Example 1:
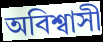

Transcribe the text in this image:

অবিশ্বাসী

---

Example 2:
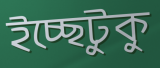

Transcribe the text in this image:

ইচ্ছেটুকু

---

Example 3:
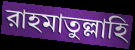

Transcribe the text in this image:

রাহমাতুল্লাহি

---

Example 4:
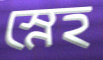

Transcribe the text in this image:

স্নেহ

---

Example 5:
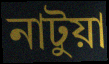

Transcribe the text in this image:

নাটুয়া